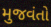
મુજવંતો